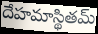
దేహమాస్థితమ్